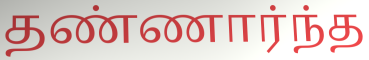
தண்ணார்ந்த